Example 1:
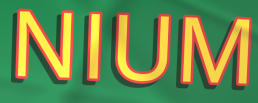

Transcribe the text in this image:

NIUM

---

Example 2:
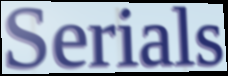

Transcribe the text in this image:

Serials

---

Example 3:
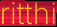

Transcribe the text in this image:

ritthi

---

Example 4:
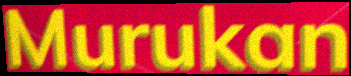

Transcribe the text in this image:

Murukan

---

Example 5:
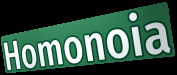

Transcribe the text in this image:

Homonoia